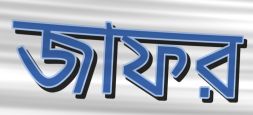
জাফর